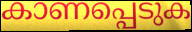
കാണപ്പെടുക